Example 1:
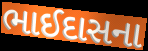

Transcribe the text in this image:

ભાઈદાસના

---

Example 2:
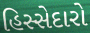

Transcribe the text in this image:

હિસ્સેદારો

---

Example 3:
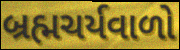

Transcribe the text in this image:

બ્રહ્મચર્યવાળો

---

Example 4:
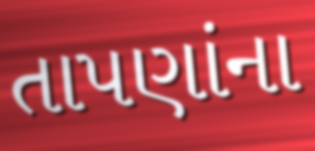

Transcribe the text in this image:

તાપણાંના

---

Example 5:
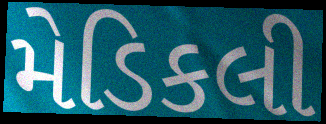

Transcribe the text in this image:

મેડિકલી